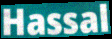
Hassal